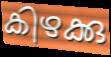
കിഴക്കു